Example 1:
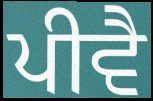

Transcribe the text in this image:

ਪੀਵੈ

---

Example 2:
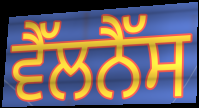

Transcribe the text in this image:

ਵੈੱਲਨੈੱਸ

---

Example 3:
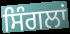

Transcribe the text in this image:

ਸਿੰਗਲਾਂ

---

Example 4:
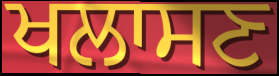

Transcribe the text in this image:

ਖਲਾਸਣ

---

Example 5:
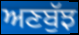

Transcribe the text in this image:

ਅਣਬੁੱਝ